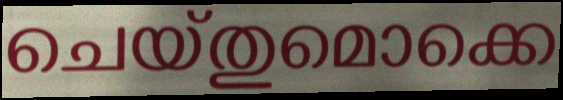
ചെയ്തുമൊക്കെ